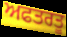
ਅਫਤਰਤੂ